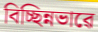
বিচ্ছিন্নভাৱে